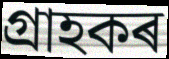
গ্ৰাহকৰ